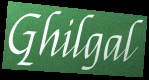
Ghilgal